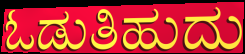
ಓಡುತಿಹುದು